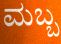
ಮಬ್ಬ